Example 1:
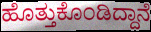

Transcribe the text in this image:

ಹೊತ್ತುಕೊಂಡಿದ್ದಾನೆ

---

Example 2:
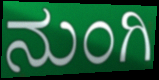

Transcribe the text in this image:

ನುಂಗಿ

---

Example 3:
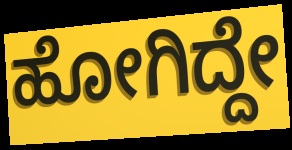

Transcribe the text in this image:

ಹೋಗಿದ್ದೇ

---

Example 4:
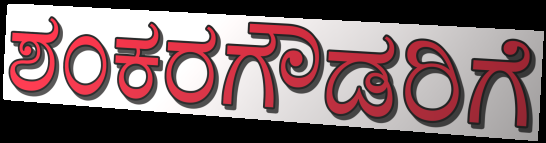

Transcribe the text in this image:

ಶಂಕರಗೌಡರಿಗೆ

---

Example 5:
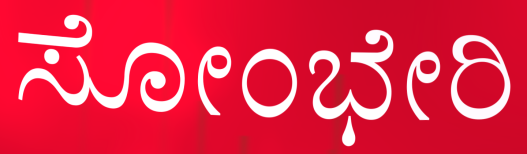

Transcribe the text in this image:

ಸೋಂಭೇರಿ